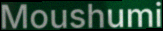
Moushumi